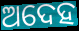
ଅଦେହ